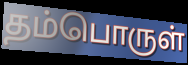
தம்பொருள்